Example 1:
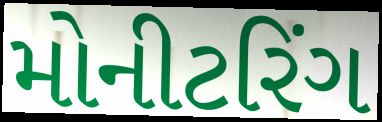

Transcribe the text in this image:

મોનીટરિંગ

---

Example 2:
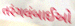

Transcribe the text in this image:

તરંગલંબાઈઓ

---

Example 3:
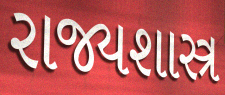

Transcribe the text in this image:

રાજ્યશાસ્ત્ર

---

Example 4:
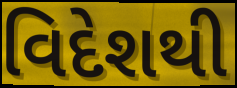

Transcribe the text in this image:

વિદેશથી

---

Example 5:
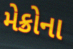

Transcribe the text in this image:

મેક્રોના